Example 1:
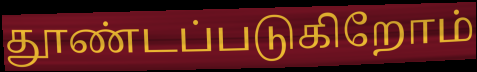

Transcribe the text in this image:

தூண்டப்படுகிறோம்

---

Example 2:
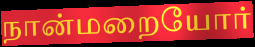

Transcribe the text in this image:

நான்மறையோர்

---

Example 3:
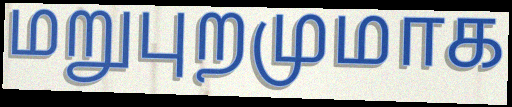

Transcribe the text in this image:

மறுபுறமுமாக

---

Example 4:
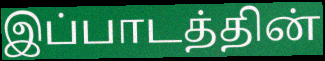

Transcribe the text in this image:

இப்பாடத்தின்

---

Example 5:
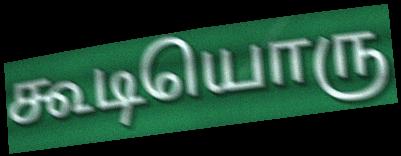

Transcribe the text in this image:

கூடியொரு